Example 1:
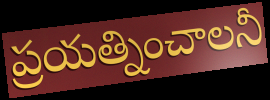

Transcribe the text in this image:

ప్రయత్నించాలనీ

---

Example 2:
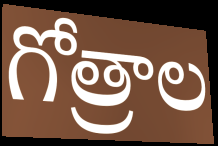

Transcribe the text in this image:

గోత్రాల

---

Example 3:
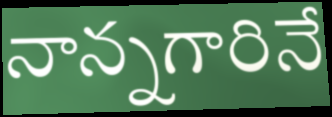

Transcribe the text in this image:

నాన్నగారినే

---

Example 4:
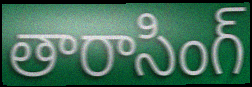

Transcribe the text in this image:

తారాసింగ్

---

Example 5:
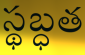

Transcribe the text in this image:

స్థబ్ధత